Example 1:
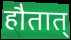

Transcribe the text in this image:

हौतात्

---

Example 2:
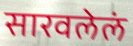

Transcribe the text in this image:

सारवलेलं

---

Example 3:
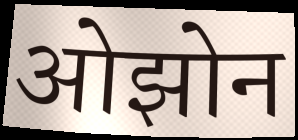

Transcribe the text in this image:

ओझोन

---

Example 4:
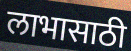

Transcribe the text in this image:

लाभासाठी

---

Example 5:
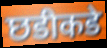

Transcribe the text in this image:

छडीकडे